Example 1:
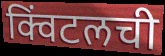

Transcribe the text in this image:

क्विंटलची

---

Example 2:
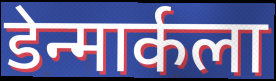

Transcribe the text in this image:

डेन्मार्कला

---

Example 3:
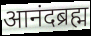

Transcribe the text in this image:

आनंदब्रह्म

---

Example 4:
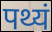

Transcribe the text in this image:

पथ्यं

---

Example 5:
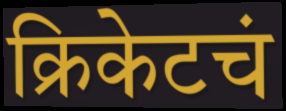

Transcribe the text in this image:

क्रिकेटचं